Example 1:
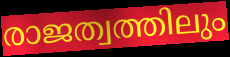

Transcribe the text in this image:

രാജത്വത്തിലും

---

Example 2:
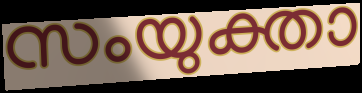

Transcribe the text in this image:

സംയുക്താ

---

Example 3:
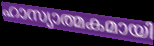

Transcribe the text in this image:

ഹാസ്യാത്മകമായി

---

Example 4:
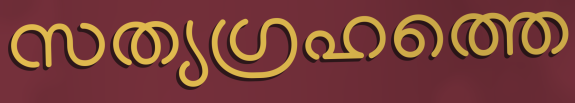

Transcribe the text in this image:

സത്യഗ്രഹത്തെ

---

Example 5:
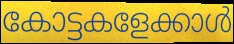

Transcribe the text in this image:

കോട്ടകളേക്കാൾ